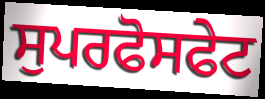
ਸੁਪਰਫੋਸਫੇਟ